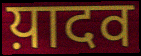
य़ादव